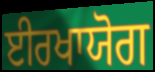
ਈਰਖਾਯੋਗ